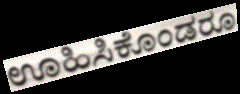
ಊಹಿಸಿಕೊಂಡರೂ